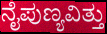
ನೈಪುಣ್ಯವಿತ್ತು